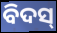
ବିଦସ୍